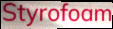
Styrofoam